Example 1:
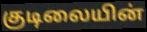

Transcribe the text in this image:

குடிலையின்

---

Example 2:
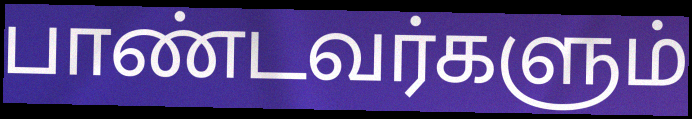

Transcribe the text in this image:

பாண்டவர்களும்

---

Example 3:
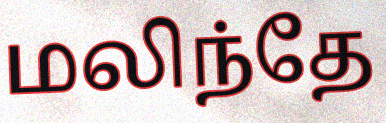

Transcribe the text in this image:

மலிந்தே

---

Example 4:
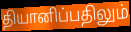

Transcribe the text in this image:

தியானிப்பதிலும்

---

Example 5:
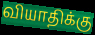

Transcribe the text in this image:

வியாதிக்கு